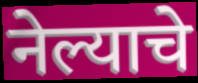
नेल्याचे